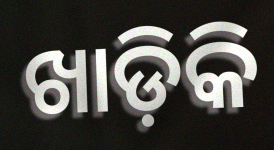
ଖାଡ଼ିକି